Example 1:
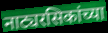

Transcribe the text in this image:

नाट्यरसिकांच्या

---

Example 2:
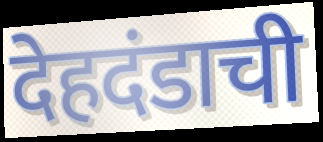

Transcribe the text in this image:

देहदंडाची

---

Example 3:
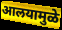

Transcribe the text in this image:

आलयामुळे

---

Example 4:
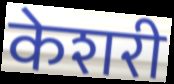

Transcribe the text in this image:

केशरी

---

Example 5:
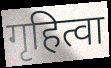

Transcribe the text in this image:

गृहित्वा